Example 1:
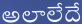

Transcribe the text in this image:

అలాలేదే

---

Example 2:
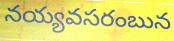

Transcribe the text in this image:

నయ్యవసరంబున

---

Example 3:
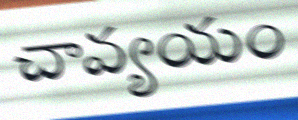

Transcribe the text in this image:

చావ్యయం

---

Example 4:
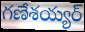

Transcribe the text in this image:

గణేశయ్యర్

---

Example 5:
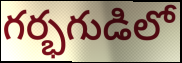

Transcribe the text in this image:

గర్భగుడిలో